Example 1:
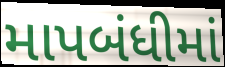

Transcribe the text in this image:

માપબંધીમાં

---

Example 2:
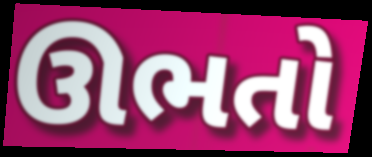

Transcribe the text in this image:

ઊભતો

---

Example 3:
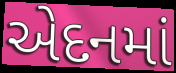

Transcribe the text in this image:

એદનમાં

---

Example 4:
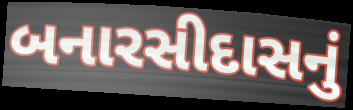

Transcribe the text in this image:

બનારસીદાસનું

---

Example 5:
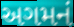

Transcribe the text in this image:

અગમનં